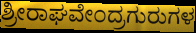
ಶ್ರೀರಾಘವೇಂದ್ರಗುರುಗಳ